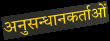
अनुसन्धानकर्ताओं